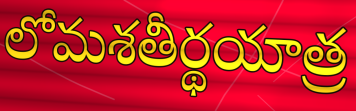
లోమశతీర్థయాత్ర